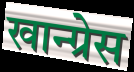
खान्ग्रेस